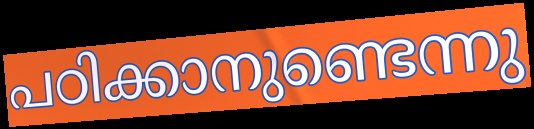
പഠിക്കാനുണ്ടെന്നു